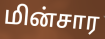
மின்சார